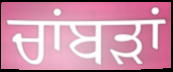
ਚਾਂਬੜਾਂ